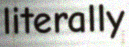
literally